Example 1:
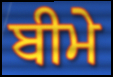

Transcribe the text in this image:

ਬੀਮੇ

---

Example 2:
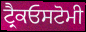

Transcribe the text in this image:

ਟ੍ਰੈਕਓਸਟੋਮੀ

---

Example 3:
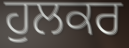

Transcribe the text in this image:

ਹੁਲਕਰ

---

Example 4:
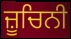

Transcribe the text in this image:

ਜ਼ੂਚਿਨੀ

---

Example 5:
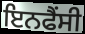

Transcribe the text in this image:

ਇਨਫੈਂਸੀ